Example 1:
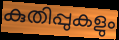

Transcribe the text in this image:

കുതിപ്പുകളും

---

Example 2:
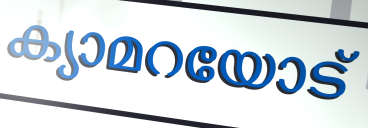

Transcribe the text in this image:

ക്യാമറയോട്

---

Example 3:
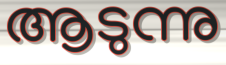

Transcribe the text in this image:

ആടുന്നു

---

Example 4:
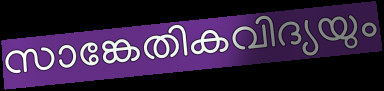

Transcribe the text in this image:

സാങ്കേതികവിദ്യയും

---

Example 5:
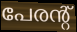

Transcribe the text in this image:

പേരന്റ്